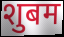
शुबम